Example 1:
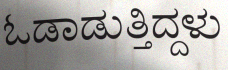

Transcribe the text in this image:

ಓಡಾಡುತ್ತಿದ್ದಳು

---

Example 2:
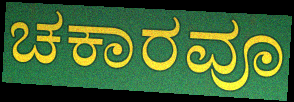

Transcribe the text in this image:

ಚಕಾರವೂ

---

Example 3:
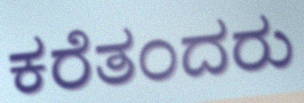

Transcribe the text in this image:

ಕರೆತಂದರು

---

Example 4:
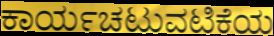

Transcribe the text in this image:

ಕಾರ್ಯಚಟುವಟಿಕೆಯ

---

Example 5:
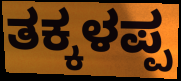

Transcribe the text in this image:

ತಕ್ಕಳಪ್ಪ